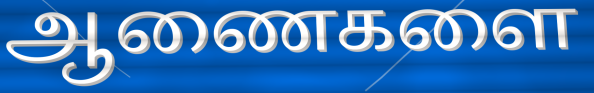
ஆணைகளை